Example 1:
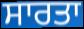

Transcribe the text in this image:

ਸਾਰਤਾ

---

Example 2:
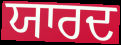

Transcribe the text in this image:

ਯਾਰਦ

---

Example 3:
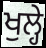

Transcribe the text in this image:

ਖੁਲ੍ਹੇ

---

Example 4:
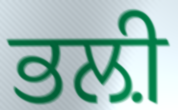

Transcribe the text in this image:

ਭਲ਼ੀ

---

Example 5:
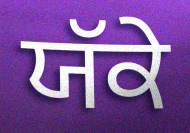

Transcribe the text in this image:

ਯੱਕੇ